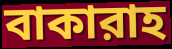
বাকারাহ